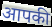
आपकी